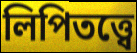
লিপিতত্ত্বে